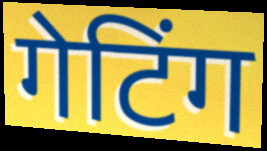
गेटिंग